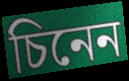
চিনেন